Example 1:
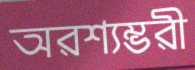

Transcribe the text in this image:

অৱশ্যম্ভৱী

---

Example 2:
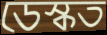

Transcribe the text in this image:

ডেস্কত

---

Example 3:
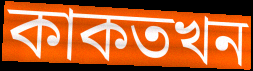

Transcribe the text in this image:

কাকতখন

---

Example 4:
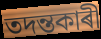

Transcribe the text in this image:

তদন্তকাৰী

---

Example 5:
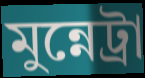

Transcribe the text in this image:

মুন্নেট্ৰা